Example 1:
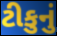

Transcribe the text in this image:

ટીકુનું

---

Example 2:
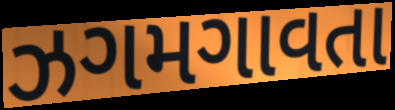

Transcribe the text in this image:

ઝગમગાવતા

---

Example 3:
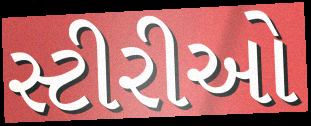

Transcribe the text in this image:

સ્ટીરીઓ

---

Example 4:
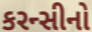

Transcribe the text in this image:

કરન્સીનો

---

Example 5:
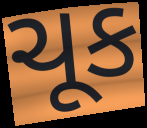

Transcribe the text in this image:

ચૂક